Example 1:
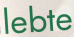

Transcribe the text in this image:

lebte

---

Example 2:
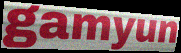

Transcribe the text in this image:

gamyun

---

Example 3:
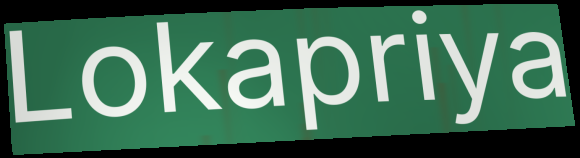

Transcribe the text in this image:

Lokapriya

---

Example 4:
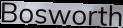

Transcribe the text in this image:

Bosworth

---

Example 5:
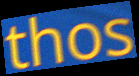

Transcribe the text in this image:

thos